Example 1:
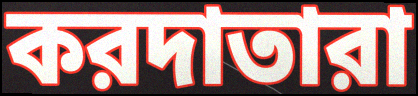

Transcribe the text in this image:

করদাতারা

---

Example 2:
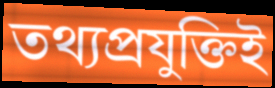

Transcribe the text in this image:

তথ্যপ্রযুক্তিই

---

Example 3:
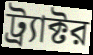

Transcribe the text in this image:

ট্র্যাক্টর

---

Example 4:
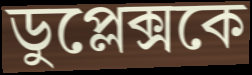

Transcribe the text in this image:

ডুপ্লেক্সকে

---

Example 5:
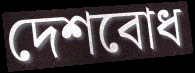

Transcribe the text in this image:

দেশবোধ